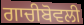
ਗਾਚੀਬੋਵਲੀ